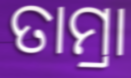
ତାମ୍ରା